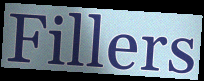
Fillers